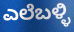
ಎಲೆಬಳ್ಳಿ